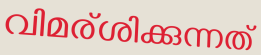
വിമര്ശിക്കുന്നത്